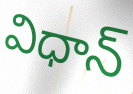
విధాన్